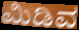
ಮಿಡಿವ